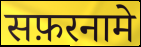
सफ़रनामे